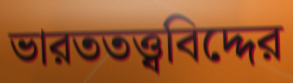
ভারততত্ত্ববিদ্দের